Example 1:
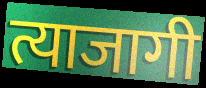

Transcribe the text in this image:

त्याजागी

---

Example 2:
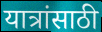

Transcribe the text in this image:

यात्रांसाठी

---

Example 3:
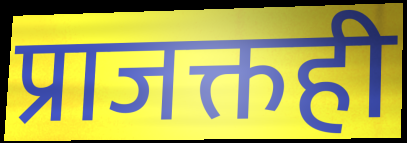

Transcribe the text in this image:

प्राजक्तही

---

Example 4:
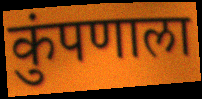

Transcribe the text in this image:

कुंपणाला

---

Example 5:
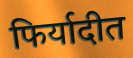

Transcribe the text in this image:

फिर्यादीत